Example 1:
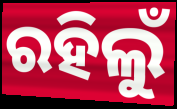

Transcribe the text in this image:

ରହିଲୁଁ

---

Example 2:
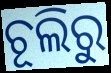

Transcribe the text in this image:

ଚୂଲିରୁ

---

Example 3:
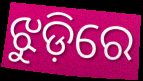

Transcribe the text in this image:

ଝୁଡ଼ିରେ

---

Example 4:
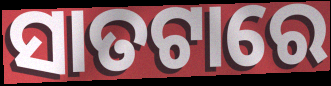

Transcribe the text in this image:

ସାତଟାରେ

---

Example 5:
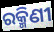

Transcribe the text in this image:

ରକ୍ମିଣୀ